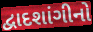
દ્વાદશાંગીનો